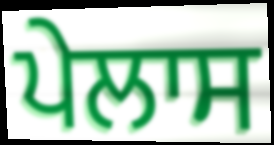
ਪੇਲਾਸ